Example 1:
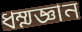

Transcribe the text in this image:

ধম্মজ্ঞান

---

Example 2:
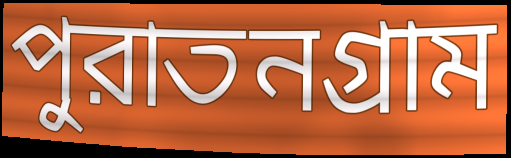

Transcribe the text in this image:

পুরাতনগ্রাম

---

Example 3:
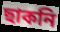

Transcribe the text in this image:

ছাকনি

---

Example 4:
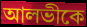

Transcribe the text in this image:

আলভীকে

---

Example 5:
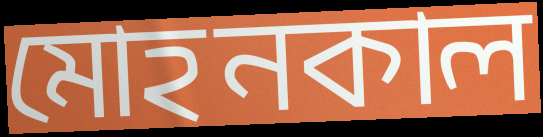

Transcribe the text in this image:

মোহনকাল